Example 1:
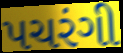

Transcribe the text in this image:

પચરંગી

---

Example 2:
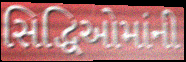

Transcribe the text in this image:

સિદ્ધિઓમાંની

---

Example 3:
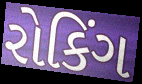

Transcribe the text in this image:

રોકિંગ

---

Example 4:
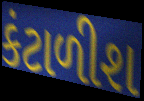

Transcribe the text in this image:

કંટાળીશ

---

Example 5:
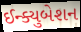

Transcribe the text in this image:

ઈન્ક્યુબેશન